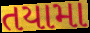
તયામા